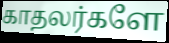
காதலர்களே